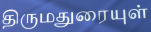
திருமதுரையுள்